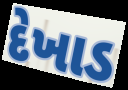
દેખાડ